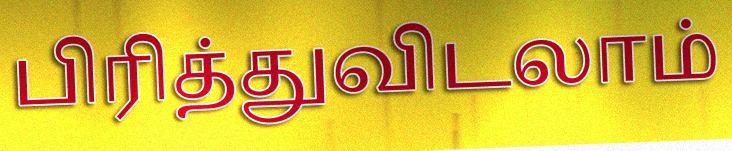
பிரித்துவிடலாம்